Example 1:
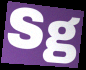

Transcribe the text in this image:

Sg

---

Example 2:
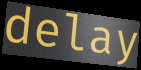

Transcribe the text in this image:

delay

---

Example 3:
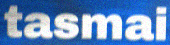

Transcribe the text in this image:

tasmai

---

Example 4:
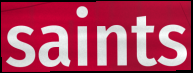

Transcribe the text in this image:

saints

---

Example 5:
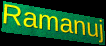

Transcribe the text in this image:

Ramanuj